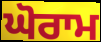
ਘੋਰਾਮ